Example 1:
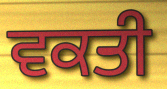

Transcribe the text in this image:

ਵਕਤੀ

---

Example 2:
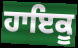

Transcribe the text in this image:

ਹਾਇਕੂ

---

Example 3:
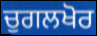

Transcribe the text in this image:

ਚੁਗਲਖੋਰ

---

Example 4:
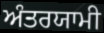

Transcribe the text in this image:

ਅੰਤਰਯਾਮੀ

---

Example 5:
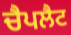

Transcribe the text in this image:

ਚੈਪਲੈਟ